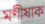
মণীষাক